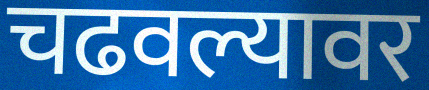
चढवल्यावर